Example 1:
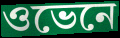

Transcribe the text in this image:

ওভেনে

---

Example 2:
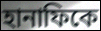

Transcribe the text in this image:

হানাফিকে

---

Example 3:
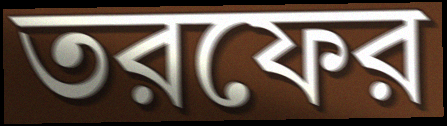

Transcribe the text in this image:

তরফের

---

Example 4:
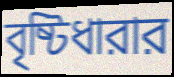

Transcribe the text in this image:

বৃষ্টিধারার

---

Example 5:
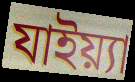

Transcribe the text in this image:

যাইয়্যা